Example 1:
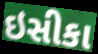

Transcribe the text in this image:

ઇસીકા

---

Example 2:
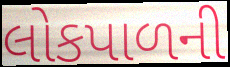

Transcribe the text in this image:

લોકપાળની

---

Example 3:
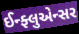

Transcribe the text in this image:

ઈન્ફ્લુએન્સર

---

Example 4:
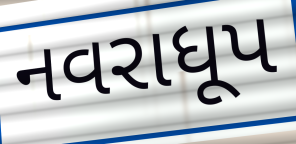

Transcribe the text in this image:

નવરાધૂપ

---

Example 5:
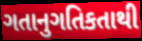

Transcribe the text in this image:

ગતાનુગતિકતાથી